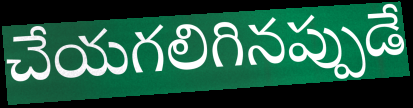
చేయగలిగినప్పుడే